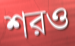
শরও